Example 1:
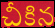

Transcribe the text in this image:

చీకిన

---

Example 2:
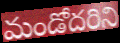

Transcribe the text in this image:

మండోదరిని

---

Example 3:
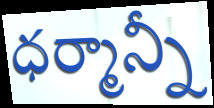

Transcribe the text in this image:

ధర్మాన్నీ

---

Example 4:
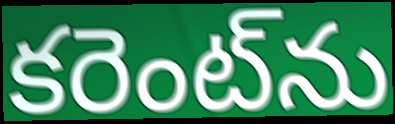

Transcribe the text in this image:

కరెంట్‌ను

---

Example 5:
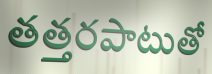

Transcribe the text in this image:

తత్తరపాటుతో